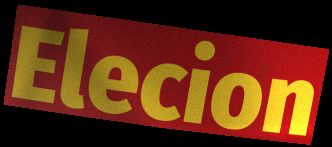
Elecion